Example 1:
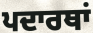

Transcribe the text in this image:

ਪਦਾਰਥਾਂ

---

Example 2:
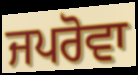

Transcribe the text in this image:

ਜਪਰੋਵਾ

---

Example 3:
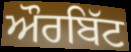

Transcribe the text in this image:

ਔਰਬਿੱਟ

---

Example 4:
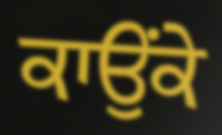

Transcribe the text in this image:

ਕਾਉਂਕੇ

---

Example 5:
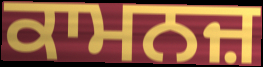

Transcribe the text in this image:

ਕਾਮਨਜ਼